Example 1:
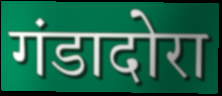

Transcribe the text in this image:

गंडादोरा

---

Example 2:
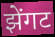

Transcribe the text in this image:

झेंगट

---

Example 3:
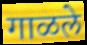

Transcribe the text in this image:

गाळले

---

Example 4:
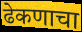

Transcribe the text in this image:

ढेकणाचा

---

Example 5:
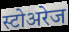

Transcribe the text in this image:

स्टोअरेज